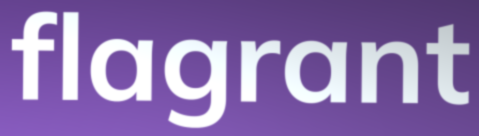
flagrant